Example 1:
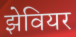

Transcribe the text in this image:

झेवियर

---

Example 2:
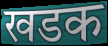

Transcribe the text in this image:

खडक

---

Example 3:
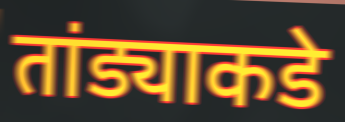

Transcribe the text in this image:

तांड्याकडे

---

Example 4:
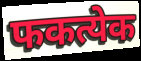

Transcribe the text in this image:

फकत्येक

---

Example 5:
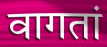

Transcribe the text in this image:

वागतां